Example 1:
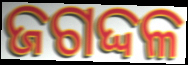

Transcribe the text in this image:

ଜଗଦ୍ଦଳ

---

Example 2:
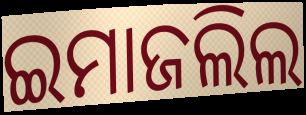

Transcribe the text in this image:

ଇମାଜଲିଲ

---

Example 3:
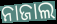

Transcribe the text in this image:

ନାଜାଲ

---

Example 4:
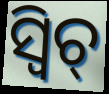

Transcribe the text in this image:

ସ୍ଵିଚ୍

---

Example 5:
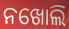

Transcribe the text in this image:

ନଖୋଲି